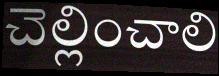
చెల్లించాలి